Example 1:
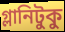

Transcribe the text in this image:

গ্লানিটুকু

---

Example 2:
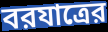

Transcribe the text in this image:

বরযাত্রের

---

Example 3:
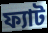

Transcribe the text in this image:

ফ্যাট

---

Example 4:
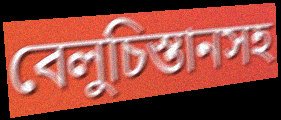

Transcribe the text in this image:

বেলুচিস্তানসহ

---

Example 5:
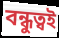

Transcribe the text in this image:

বন্ধুত্বই